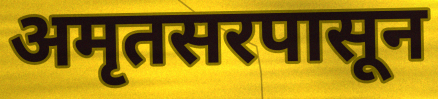
अमृतसरपासून